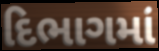
દિભાગમાં